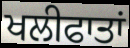
ਖਲੀਫਾਤਾਂ